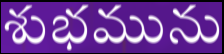
శుభమును